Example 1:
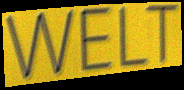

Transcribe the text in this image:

WELT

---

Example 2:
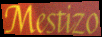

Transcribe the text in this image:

Mestizo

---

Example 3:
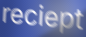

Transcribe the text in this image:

reciept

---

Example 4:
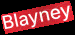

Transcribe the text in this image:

Blayney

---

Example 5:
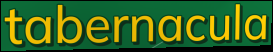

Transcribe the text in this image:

tabernacula